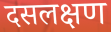
दसलक्षण